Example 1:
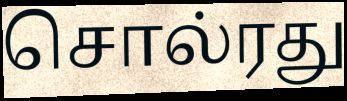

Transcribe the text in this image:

சொல்ரது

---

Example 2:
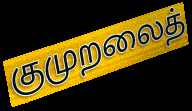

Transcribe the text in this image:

குமுறலைத்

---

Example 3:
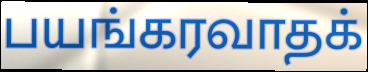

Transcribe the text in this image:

பயங்கரவாதக்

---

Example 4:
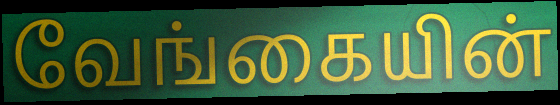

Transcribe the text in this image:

வேங்கையின்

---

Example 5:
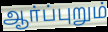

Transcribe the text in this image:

ஆர்ப்புறும்